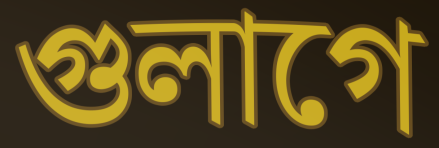
গুলাগে